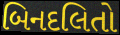
બિનદલિતો